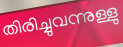
തിരിച്ചുവന്നുള്ളു